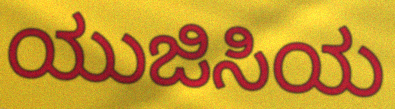
ಯುಜಿಸಿಯ